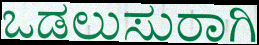
ಒಡಲುಸುರಾಗಿ